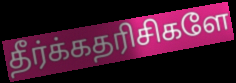
தீர்க்கதரிசிகளே